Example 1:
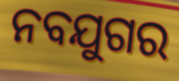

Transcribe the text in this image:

ନବଯୁଗର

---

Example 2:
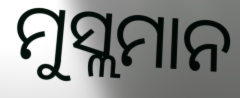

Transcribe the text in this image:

ମୁସ୍ଲମାନ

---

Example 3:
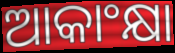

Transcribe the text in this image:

ଆକାଂକ୍ଷା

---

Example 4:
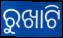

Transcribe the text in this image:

ରୁଖାଟି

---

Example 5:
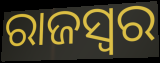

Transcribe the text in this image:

ରାଜସ୍ବର